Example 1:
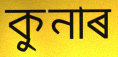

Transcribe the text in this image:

কুনাৰ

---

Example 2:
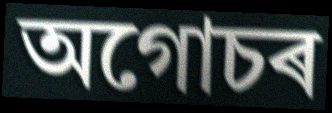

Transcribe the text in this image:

অগোচৰ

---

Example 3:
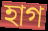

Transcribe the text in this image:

হাগ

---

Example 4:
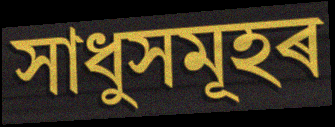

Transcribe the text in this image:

সাধুসমূহৰ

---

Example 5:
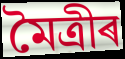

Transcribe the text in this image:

মৈত্ৰীৰ